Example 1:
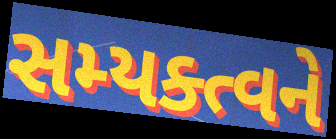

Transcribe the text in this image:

સમ્યક્ત્વને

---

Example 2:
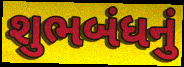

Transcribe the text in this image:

શુભબંધનું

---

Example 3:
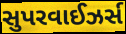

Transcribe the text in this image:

સુપરવાઈઝર્સ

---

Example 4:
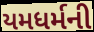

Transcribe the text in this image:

યમધર્મની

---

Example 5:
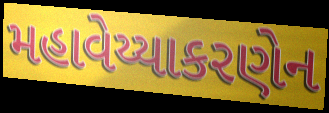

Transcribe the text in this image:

મહાવેય્યાકરણેન